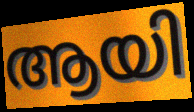
ആയി